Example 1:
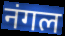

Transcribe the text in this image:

नंगल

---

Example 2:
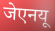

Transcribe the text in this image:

जेएनयू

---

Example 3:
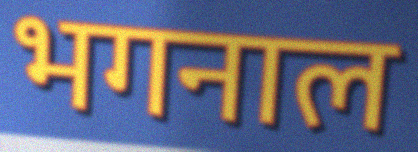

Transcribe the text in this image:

भगनाल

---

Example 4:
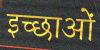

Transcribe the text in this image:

इच्छाओं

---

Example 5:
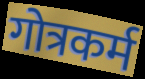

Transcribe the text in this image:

गोत्रकर्म